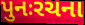
પુનઃરચના